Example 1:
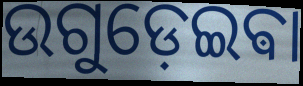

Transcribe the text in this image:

ଉଗୁଡ଼େଇଵା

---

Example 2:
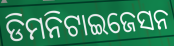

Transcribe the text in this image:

ଡିମନିଟାଇଜେସନ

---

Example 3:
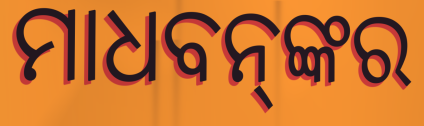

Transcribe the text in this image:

ମାଧବନ୍‌ଙ୍କର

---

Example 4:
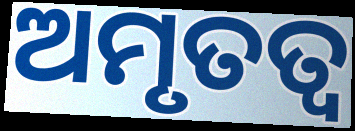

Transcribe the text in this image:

ଅମୃତତ୍ବ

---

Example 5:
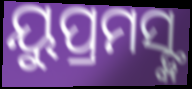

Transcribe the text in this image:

ୟୁପ୍ରମସ୍ଙ୍କ